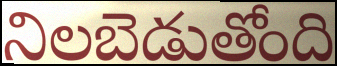
నిలబెడుతోంది